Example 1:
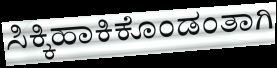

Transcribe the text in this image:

ಸಿಕ್ಕಿಹಾಕಿಕೊಂಡಂತಾಗಿ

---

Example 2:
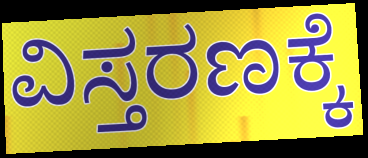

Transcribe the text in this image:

ವಿಸ್ತರಣಕ್ಕೆ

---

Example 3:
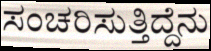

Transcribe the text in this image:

ಸಂಚರಿಸುತ್ತಿದ್ದೆನು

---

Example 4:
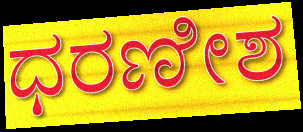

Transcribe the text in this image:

ಧರಣೀಶ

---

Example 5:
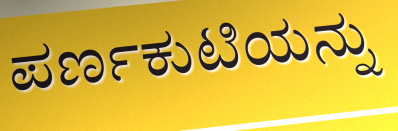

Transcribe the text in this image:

ಪರ್ಣಕುಟಿಯನ್ನು